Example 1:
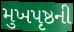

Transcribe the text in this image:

મુખપૃષ્ઠની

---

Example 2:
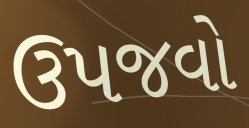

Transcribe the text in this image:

ઉપજવો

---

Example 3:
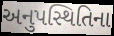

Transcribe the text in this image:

અનુપસ્થિતિના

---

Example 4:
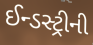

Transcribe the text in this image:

ઈન્ડસ્ટ્રીની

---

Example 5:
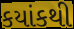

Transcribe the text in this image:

કયાંકથી